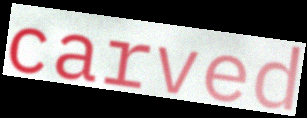
carved